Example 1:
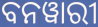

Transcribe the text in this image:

ବନୱାରୀ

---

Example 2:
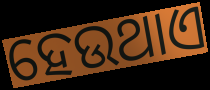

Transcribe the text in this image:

ହେଉଥାଏ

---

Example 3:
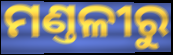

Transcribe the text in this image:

ମଣ୍ତଳୀରୁ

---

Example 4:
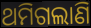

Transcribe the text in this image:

ଥମିଗଲାଣି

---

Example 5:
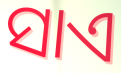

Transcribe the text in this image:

ସାଏ